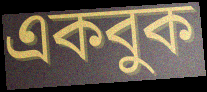
একবুক